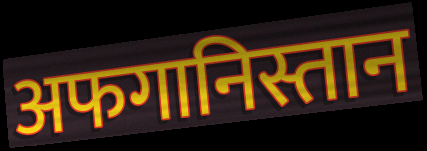
अफगानिस्तान